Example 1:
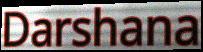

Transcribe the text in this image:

Darshana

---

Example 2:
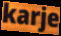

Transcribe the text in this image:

karje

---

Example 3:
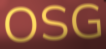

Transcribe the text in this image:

OSG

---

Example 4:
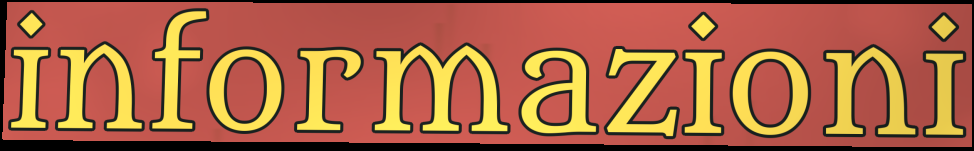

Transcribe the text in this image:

informazioni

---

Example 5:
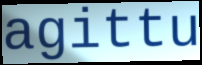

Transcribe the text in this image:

agittu